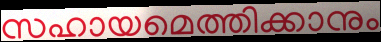
സഹായമെത്തിക്കാനും